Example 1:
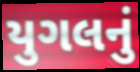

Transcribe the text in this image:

યુગલનું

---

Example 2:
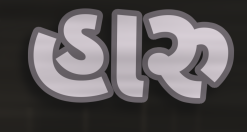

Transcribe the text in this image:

હારુ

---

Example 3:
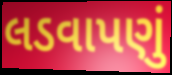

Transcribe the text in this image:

લડવાપણું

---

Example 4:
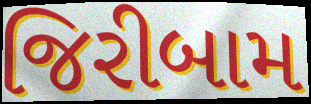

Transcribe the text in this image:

જિરીબામ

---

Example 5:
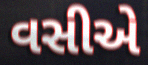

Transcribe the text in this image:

વસીએ